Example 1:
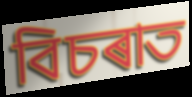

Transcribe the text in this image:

বিচৰাত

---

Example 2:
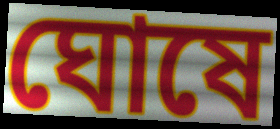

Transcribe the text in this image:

ঘোষে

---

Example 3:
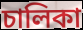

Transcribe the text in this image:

চালিকা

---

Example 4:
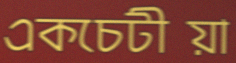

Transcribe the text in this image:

একচেটীয়া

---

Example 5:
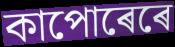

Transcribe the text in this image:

কাপোৰেৰে